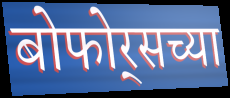
बोफोर्सच्या